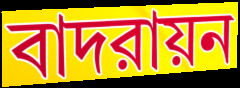
বাদরায়ন